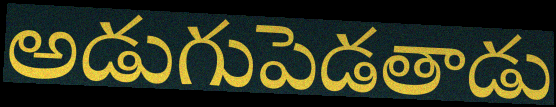
అడుగుపెడతాడు